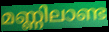
മണ്ണിലാണ്ട